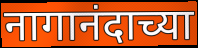
नागानंदाच्या